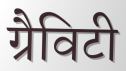
ग्रैविटी